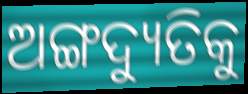
ଅଙ୍ଗଦ୍ୟୁତିକୁ